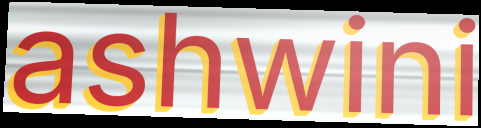
ashwini